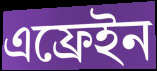
এফ্রেইন